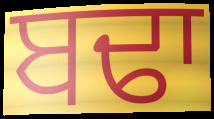
ਬਢਾ